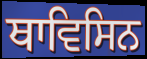
ਥਾਵਿਸਿਨ